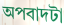
অপবাদটা